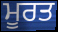
ਮੂਰਤ